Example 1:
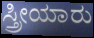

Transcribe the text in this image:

ಸ್ತ್ರೀಯಾರು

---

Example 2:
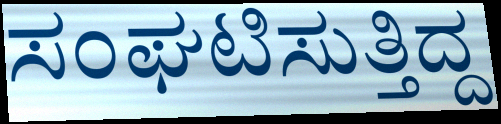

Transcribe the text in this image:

ಸಂಘಟಿಸುತ್ತಿದ್ದ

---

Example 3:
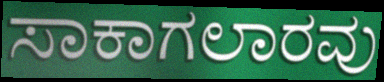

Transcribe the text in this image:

ಸಾಕಾಗಲಾರವು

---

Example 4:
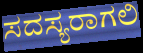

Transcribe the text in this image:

ಸದಸ್ಯರಾಗಲಿ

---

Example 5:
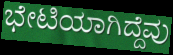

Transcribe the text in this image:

ಭೇಟಿಯಾಗಿದ್ದೆವು